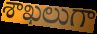
శాఖలుగా